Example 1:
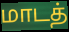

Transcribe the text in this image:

மாடத்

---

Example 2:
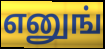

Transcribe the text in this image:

எனுங்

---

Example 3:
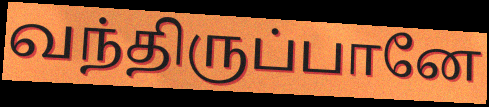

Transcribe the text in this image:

வந்திருப்பானே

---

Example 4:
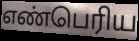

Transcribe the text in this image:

எண்பெரிய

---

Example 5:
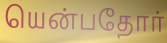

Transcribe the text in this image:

யென்பதோர்